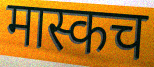
मास्कच